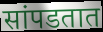
सांपडतात